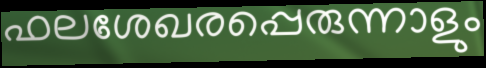
ഫലശേഖരപ്പെരുന്നാളും